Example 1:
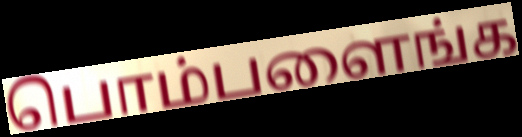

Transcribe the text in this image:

பொம்பளைங்க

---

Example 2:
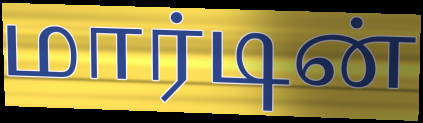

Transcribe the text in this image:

மார்டின்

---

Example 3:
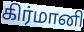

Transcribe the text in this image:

கிர்மானி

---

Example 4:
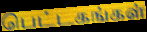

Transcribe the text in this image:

பெட்டகங்கள்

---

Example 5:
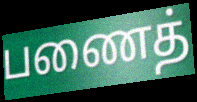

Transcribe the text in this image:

பணைத்